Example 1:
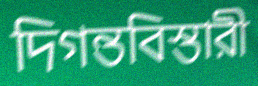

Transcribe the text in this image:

দিগন্তবিস্তারী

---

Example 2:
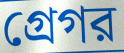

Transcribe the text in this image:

গ্রেগর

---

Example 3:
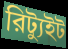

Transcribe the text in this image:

রিট্যুইট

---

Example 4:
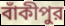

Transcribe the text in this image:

বাঁকীপুর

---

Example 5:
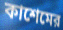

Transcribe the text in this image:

কাশেমের